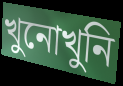
খুনোখুনি